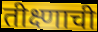
तीक्ष्णाची